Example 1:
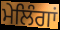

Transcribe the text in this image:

ਮੇਲਿੰਗਾਂ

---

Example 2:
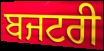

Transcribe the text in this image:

ਬਜਟਰੀ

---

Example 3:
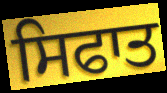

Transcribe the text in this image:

ਸਿਫਾਤ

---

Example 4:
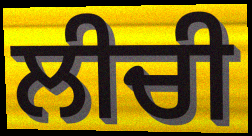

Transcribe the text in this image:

ਲੀਚੀ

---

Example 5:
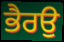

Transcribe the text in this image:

ਭੈਰਉ